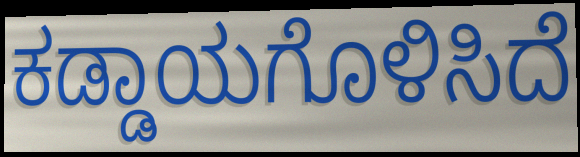
ಕಡ್ಡಾಯಗೊಳಿಸಿದೆ